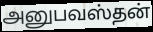
அனுபவஸ்தன்